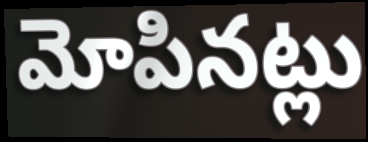
మోపినట్లు